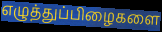
எழுத்துப்பிழைகளை